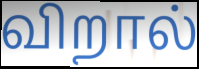
விறால்